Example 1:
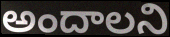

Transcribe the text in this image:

అందాలని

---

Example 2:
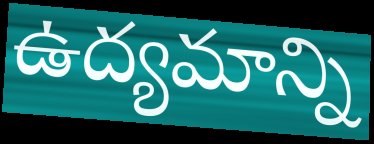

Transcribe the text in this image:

ఉద్యమాన్ని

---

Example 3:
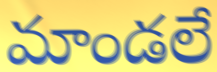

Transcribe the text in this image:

మాండలే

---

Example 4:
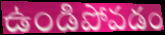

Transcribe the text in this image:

ఉండిపోవడం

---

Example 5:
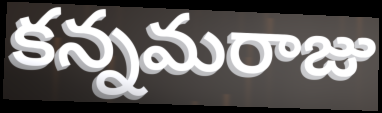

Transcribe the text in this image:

కన్నమరాజు